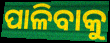
ପାଳିବାକୁ